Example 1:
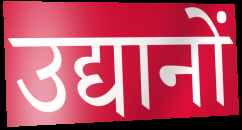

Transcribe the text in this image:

उद्यानों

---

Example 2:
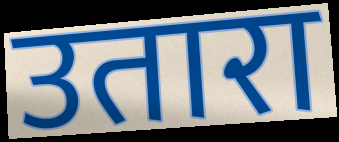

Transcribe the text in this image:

उतारा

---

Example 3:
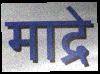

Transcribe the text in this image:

माद्रे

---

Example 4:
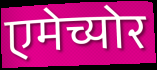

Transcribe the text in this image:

एमेच्योर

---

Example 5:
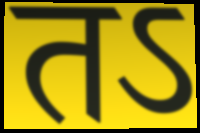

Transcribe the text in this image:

तऽ